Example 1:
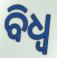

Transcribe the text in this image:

ବିଧ୍ଵ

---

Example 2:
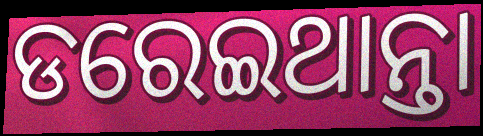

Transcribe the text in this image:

ଡରେଇଥାନ୍ତା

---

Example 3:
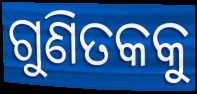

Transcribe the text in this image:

ଗୁଣିତକକୁ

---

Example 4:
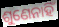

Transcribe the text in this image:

ଶୁଣେନାହିଁ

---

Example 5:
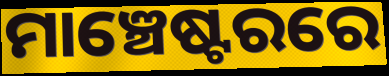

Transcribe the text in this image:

ମାଞ୍ଚେଷ୍ଟରରେ